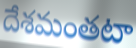
దేశమంతటా